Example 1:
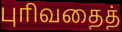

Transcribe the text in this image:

புரிவதைத்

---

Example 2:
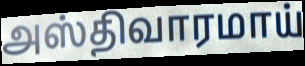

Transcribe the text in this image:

அஸ்திவாரமாய்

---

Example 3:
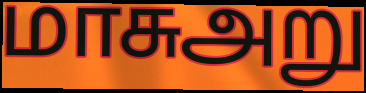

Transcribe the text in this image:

மாசுஅறு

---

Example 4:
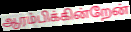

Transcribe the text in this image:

ஆரம்பிக்கின்றேன்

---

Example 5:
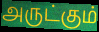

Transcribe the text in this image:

அருட்கும்